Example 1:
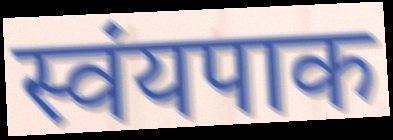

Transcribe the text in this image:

स्वंयपाक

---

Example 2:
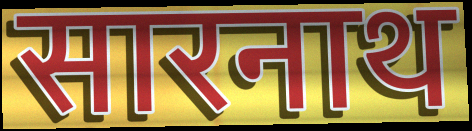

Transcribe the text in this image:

सारनाथ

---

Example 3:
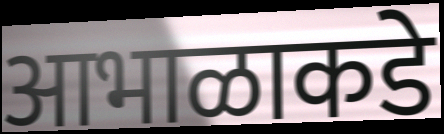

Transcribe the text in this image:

आभाळाकडे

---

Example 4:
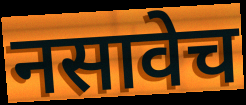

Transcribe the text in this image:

नसावेच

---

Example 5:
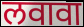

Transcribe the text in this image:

लवावा